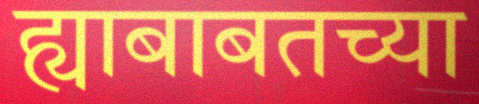
ह्याबाबतच्या